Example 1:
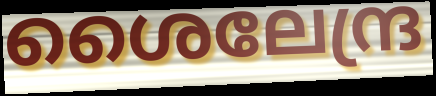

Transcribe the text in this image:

ശൈലേന്ദ്ര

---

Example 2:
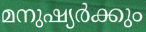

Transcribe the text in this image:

മനുഷ്യർക്കും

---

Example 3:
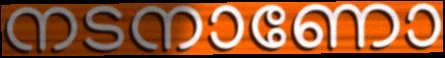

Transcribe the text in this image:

നടനാണോ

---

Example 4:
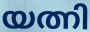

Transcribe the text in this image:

യത്നി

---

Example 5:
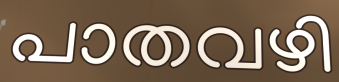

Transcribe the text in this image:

പാതവഴി